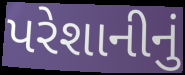
પરેશાનીનું